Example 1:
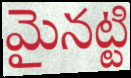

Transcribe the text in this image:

మైనట్టి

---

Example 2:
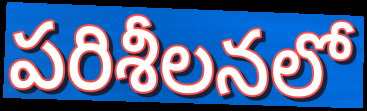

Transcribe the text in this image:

పరిశీలనలో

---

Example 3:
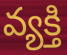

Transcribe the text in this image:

వ్యక్తి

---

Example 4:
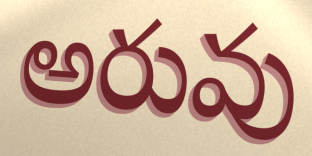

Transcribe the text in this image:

అరువు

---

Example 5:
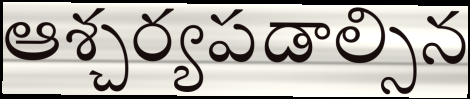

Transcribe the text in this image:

ఆశ్చర్యపడాల్సిన